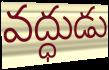
వద్ధుడు